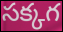
సక్కగ